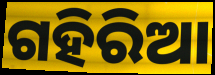
ଗହିରିଆ